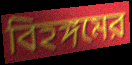
বিহঙ্গমের